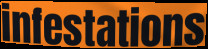
infestations